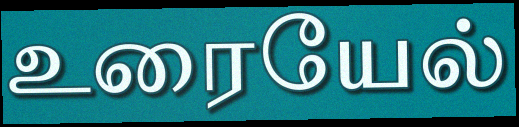
உரையேல்